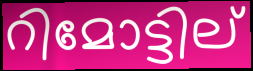
റിമോട്ടില്